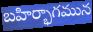
బహిర్భాగమున